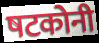
षटकोनी